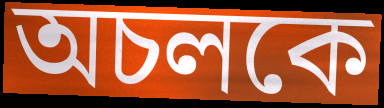
অচলকে